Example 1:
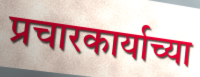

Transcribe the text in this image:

प्रचारकार्याच्या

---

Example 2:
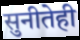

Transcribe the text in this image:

सुनीतेही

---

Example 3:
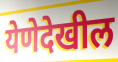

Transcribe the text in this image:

येणेदेखील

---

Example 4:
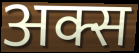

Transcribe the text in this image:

अक्स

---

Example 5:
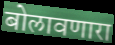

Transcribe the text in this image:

बोलावणारा